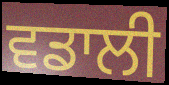
ਵਡਾਲੀ